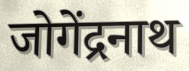
जोगेंद्रनाथ